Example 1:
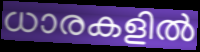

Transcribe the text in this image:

ധാരകളിൽ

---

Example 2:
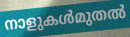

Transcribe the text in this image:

നാളുകൾമുതൽ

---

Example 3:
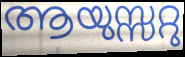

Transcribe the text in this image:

ആയുസ്സറ്റു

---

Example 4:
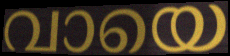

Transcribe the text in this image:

വായെ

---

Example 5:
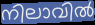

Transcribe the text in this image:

നിലാവിൽ